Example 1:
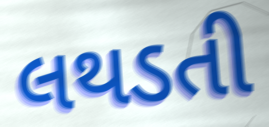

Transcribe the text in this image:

લથડતી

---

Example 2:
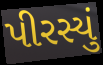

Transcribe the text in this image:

પીરસ્યું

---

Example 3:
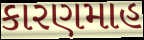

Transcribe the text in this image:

કારણમાહ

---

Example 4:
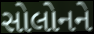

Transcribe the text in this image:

સોલોનને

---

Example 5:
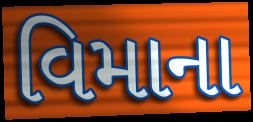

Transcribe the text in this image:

વિમાના